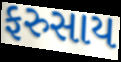
ફરુસાય